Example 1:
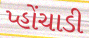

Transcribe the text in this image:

પ્હોંચાડી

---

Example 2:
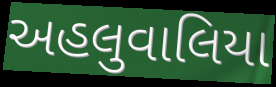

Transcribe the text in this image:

અહલુવાલિયા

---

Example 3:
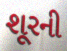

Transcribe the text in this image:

શૂરની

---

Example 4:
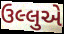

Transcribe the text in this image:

ઉલ્લુએ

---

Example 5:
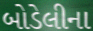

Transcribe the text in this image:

બોડેલીના